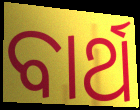
ବାର୍ଥ